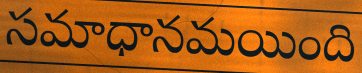
సమాధానమయింది